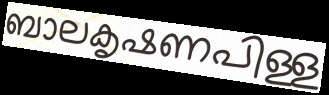
ബാലകൃഷണപിള്ള